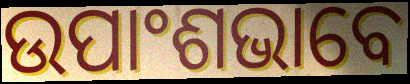
ଉପାଂଶଭାବେ